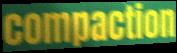
compaction